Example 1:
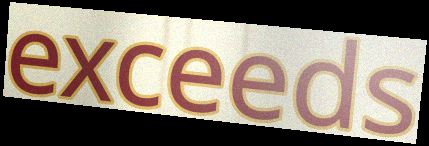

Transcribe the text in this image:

exceeds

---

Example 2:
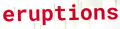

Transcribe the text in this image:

eruptions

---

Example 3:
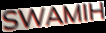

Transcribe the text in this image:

SWAMIH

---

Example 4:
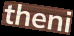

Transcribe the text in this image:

theni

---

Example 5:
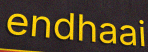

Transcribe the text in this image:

endhaai